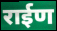
राईण